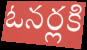
ఓనర్లకి